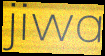
jiwa